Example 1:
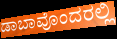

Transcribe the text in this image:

ಡಾಬಾವೊಂದರಲ್ಲಿ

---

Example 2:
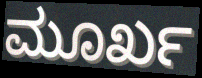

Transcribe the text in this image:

ಮೂರ್ಖ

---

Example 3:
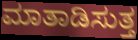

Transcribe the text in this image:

ಮಾತಾಡಿಸುತ್ತ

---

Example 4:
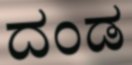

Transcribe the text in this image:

ದಂಡ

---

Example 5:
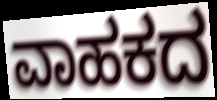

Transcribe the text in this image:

ವಾಹಕದ